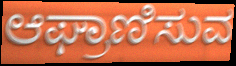
ಆಘ್ರಾಣಿಸುವ